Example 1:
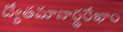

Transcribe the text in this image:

ద్యోతమానార్థరేఖాం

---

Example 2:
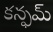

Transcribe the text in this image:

కన్ఫమ్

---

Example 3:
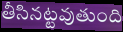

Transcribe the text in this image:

తీసినట్టవుతుంది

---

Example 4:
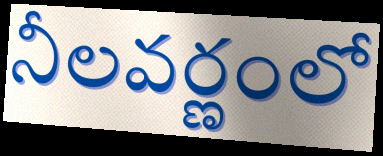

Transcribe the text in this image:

నీలవర్ణంలో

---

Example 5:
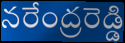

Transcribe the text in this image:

నరేంద్రరెడ్డి